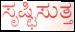
ಸೃಷ್ಟಿಸುತ್ತ